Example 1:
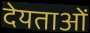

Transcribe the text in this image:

देयताओं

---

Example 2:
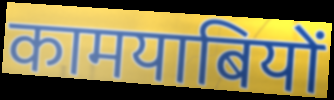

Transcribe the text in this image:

कामयाबियों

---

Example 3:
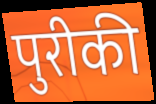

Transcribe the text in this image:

पुरीकी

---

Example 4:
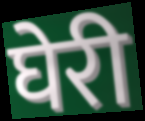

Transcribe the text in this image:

घेरी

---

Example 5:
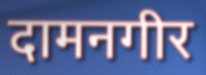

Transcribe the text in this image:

दामनगीर